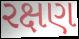
રક્ષણ